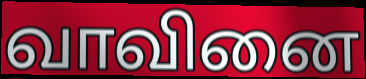
வாவினை